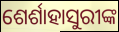
ଶେର୍ଶାହାସୁରୀଙ୍କ